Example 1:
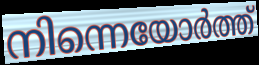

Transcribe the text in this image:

നിന്നെയോർത്ത്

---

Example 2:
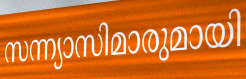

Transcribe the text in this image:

സന്ന്യാസിമാരുമായി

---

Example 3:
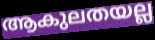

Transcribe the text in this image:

ആകുലതയല്ല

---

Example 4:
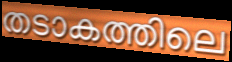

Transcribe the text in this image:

തടാകത്തിലെ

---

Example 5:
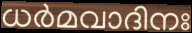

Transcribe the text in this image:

ധർമവാദിനഃ